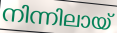
നിന്നിലായ്